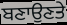
ਬਣਾਉਣਤੇ